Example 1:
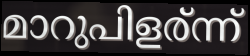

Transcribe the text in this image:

മാറുപിളര്ന്ന്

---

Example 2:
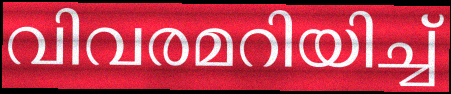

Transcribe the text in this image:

വിവരമറിയിച്ച്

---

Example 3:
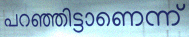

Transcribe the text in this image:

പറഞ്ഞിട്ടാണെന്ന്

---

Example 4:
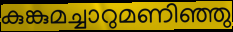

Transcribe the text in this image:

കുങ്കുമച്ചാറുമണിഞ്ഞു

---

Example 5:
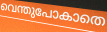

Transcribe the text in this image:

വെന്തുപോകാതെ